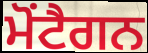
ਮੋਂਟੈਗਨ